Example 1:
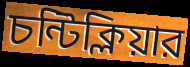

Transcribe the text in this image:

চন্টিক্লিয়ার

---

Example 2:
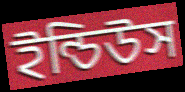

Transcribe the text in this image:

ইন্ডিউস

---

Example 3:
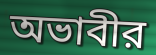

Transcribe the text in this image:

অভাবীর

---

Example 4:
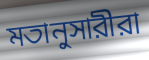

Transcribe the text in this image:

মতানুসারীরা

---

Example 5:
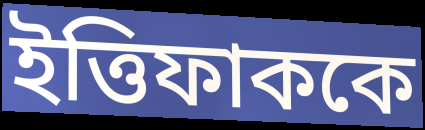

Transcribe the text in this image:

ইত্তিফাককে